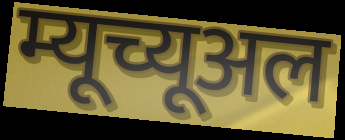
म्यूच्यूअल